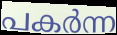
പകർന്ന